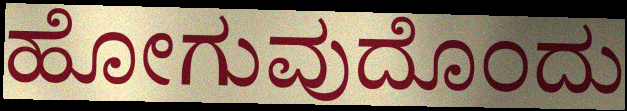
ಹೋಗುವುದೊಂದು